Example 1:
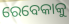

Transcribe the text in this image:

ରେବେକାକୁ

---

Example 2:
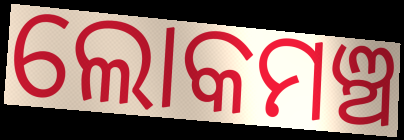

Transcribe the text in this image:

ଲୋକମଞ୍ଚ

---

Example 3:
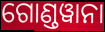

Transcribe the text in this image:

ଗୋଣ୍ଡୱାନା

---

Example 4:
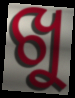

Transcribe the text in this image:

ଖୁ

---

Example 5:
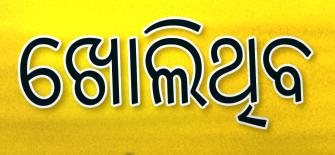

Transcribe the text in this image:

ଖୋଲିଥିବ